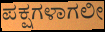
ಪಕ್ಷಗಳಾಗಲೀ